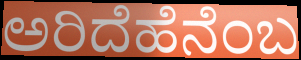
ಅರಿದೆಹೆನೆಂಬ